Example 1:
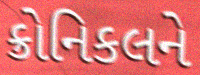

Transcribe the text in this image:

ક્રોનિકલને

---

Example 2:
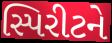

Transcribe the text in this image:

સ્પિરીટને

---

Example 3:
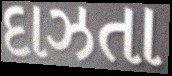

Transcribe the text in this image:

દાઝતા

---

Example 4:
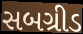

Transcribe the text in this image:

સબગ્રીડ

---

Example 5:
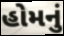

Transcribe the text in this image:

હોમનું